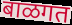
बाळगत